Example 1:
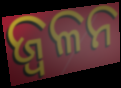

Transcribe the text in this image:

ଜ୍ୱଳନ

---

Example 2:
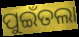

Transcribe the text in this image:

ପୁଇଁତଲା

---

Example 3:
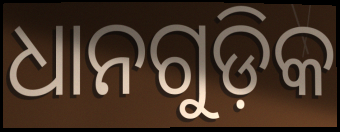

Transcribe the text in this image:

ଧାନଗୁଡ଼ିକ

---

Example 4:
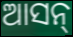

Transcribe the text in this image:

ଆସନ୍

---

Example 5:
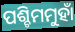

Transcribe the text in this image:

ପଶ୍ଚିମମୁହାଁ